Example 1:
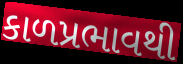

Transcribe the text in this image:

કાળપ્રભાવથી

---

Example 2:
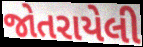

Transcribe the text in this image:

જોતરાયેલી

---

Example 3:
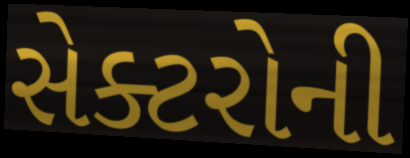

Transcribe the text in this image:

સેક્ટરોની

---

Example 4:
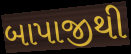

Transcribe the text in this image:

બાપાજીથી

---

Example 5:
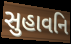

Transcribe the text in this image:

સુહાવનિ